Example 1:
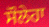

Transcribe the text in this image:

ਸੌਲੇਹਾ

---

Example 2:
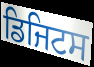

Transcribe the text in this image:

ਡਿਜਿਟਸ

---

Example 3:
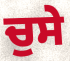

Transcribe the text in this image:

ਚੁਸੇ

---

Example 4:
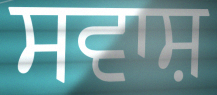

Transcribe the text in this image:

ਸਵਾਸ਼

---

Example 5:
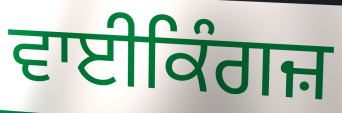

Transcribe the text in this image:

ਵਾਈਕਿੰਗਜ਼